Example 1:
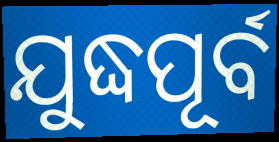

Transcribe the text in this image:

ଯୁଦ୍ଧପୂର୍ବ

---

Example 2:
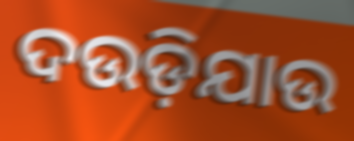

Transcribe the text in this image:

ଦଉଡ଼ିଯାଉ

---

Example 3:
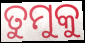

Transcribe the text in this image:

ତୁମୁକୁ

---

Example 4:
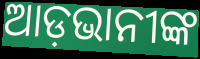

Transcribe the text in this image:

ଆଡ଼ଭାନୀଙ୍କ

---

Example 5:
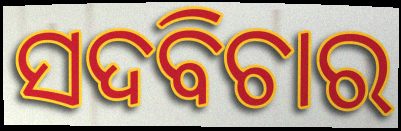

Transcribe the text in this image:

ସଦବିଚାର